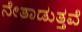
ನೇತಾಡುತ್ತವೆ